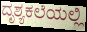
ದೃಶ್ಯಕಲೆಯಲ್ಲಿ